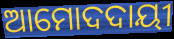
ଆମୋଦଦାୟୀ